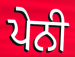
ਪੇਨੀ